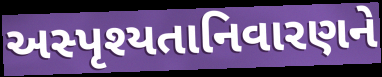
અસ્પૃશ્યતાનિવારણને